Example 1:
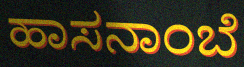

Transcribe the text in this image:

ಹಾಸನಾಂಬೆ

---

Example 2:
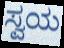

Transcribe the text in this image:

ಸ್ವಯ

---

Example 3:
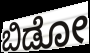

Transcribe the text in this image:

ಬಿಡೋ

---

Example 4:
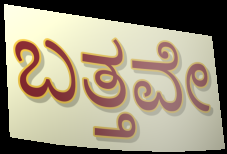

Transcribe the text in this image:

ಬತ್ತವೇ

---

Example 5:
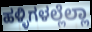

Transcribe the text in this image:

ಹಳ್ಳಿಗಳಲ್ಲೆಲ್ಲಾ